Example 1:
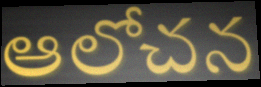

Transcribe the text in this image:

ఆలోచన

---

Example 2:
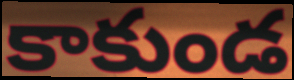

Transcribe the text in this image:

కాకుండ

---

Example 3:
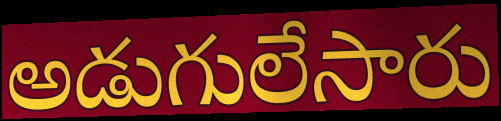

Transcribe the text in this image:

అడుగులేసారు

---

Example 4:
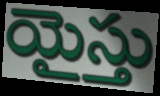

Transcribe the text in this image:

యైస్తు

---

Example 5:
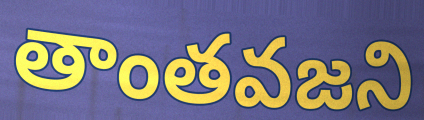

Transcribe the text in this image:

తాంతవజని